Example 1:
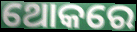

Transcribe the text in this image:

ଥୋକରେ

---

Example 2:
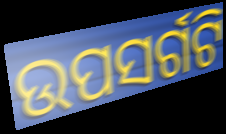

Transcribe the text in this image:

ଉପସର୍ଗଟି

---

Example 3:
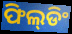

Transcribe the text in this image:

ଫିଲ୍‌ଡିଂ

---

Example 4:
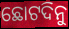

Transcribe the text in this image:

ଛୋଟଦିନୁ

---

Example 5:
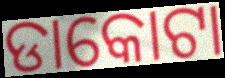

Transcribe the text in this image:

ଡାକୋଟା